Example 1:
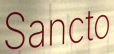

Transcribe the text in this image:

Sancto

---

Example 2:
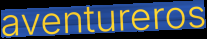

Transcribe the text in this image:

aventureros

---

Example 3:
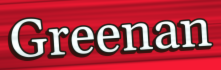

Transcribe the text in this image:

Greenan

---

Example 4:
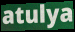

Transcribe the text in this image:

atulya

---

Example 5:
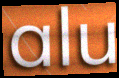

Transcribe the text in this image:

alu